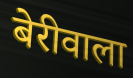
बेरीवाला